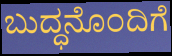
ಬುದ್ಧನೊಂದಿಗೆ